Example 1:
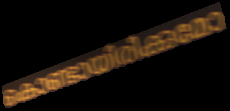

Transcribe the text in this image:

കൊണ്ടായിരിക്കുമോ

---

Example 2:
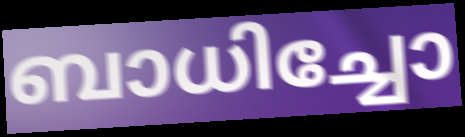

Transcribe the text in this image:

ബാധിച്ചോ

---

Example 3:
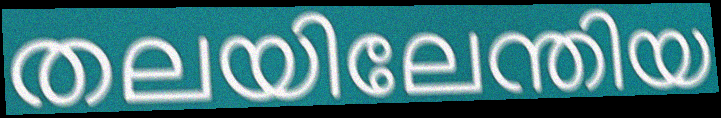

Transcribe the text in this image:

തലയിലേന്തിയ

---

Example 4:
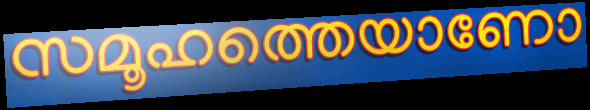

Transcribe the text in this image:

സമൂഹത്തെയാണോ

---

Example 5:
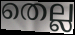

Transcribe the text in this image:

തെല്ല